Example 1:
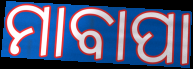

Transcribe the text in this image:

ମାବାପା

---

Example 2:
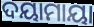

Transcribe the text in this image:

ଦୟାମାୟା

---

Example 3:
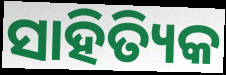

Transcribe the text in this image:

ସାହିତ୍ୟିକ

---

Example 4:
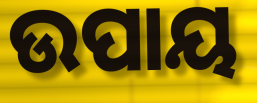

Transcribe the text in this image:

ଉପାୟ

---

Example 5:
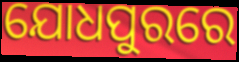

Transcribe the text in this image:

ଯୋଧପୁରରେ